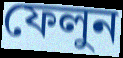
ফেলুন